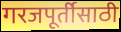
गरजपूर्तीसाठी